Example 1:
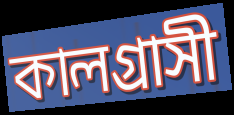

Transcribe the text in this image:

কালগ্রাসী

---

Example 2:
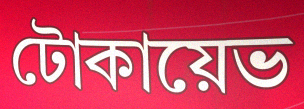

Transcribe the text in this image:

টোকায়েভ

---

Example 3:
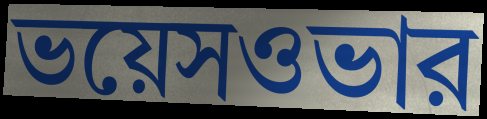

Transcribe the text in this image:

ভয়েসওভার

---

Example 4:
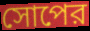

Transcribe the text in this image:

সোপের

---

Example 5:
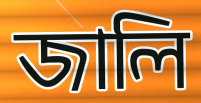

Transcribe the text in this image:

জালি